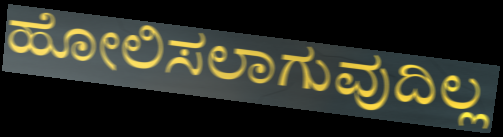
ಹೋಲಿಸಲಾಗುವುದಿಲ್ಲ